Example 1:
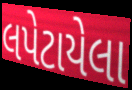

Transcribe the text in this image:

લપેટાયેલા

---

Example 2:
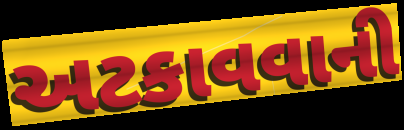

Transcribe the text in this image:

અટકાવવાની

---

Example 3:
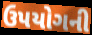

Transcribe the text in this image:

ઉપયોગની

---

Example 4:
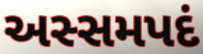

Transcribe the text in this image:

અસ્સમપદં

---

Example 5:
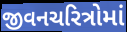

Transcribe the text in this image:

જીવનચરિત્રોમાં